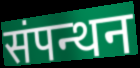
संपन्थन